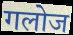
गलोज